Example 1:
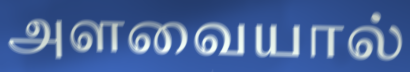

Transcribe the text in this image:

அளவையால்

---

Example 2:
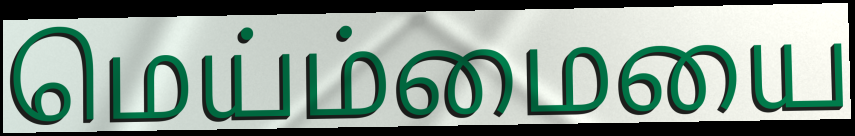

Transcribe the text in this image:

மெய்ம்மையை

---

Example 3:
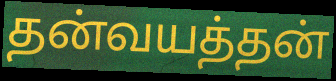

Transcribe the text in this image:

தன்வயத்தன்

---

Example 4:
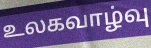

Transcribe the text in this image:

உலகவாழ்வு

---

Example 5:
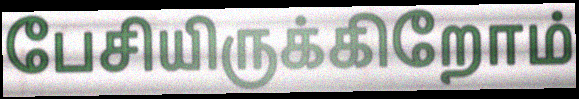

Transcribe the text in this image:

பேசியிருக்கிறோம்